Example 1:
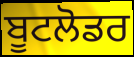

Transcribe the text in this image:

ਬੂਟਲੋਡਰ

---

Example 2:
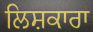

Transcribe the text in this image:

ਲਿਸ਼ਕਾਰਾ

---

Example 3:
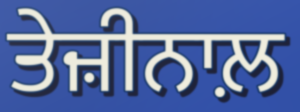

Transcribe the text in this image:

ਤੇਜ਼ੀਨਾਲ਼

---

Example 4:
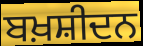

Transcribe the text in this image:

ਬਖ਼ਸ਼ੀਦਨ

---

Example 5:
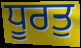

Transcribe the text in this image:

ਧੂਰਤੁ